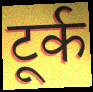
टूर्क